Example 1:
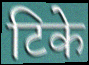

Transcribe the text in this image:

टिके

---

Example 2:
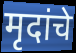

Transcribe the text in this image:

मृदांचे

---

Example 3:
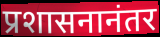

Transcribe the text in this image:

प्रशासनानंतर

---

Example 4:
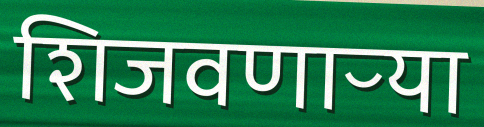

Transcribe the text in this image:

शिजवणाऱ्या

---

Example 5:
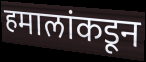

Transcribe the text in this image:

हमालांकडून